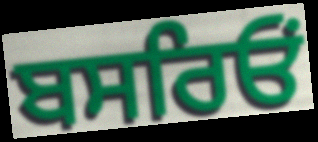
ਬਸਰਿਓਂ